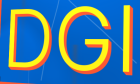
DGI